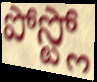
పోస్ట్లో